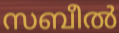
സബീൽ